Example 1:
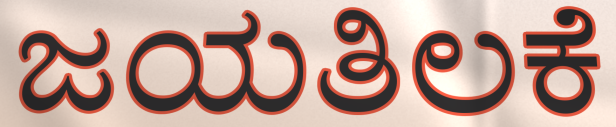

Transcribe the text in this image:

ಜಯತಿಲಕೆ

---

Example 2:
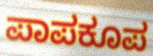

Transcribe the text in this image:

ಪಾಪಕೂಪ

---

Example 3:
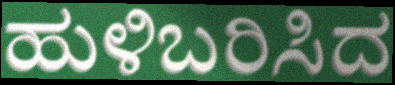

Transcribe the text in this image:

ಹುಳಿಬರಿಸಿದ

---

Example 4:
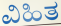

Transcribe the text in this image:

ವಿಹಿತ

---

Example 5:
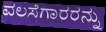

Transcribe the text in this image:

ವಲಸೆಗಾರರನ್ನು